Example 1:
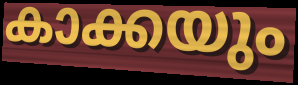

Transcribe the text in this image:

കാക്കയും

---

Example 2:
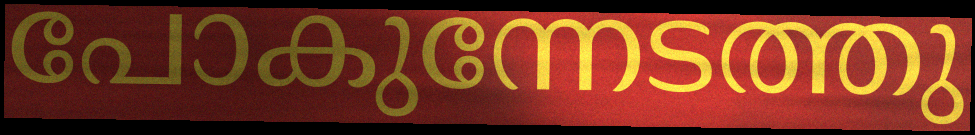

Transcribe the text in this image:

പോകുന്നേടത്തു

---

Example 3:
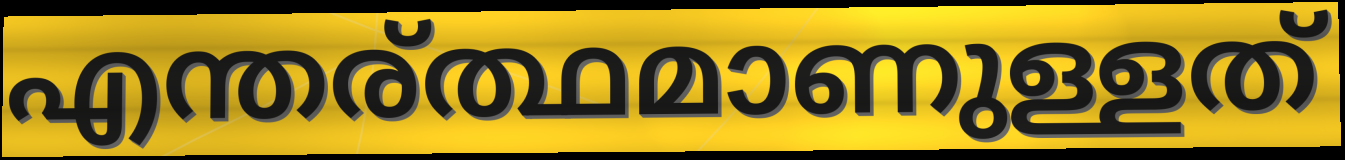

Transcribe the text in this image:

എന്തര്ത്ഥമാണുള്ളത്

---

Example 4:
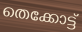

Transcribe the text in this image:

തെക്കോട്ട്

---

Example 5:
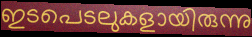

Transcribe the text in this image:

ഇടപെടലുകളായിരുന്നു